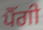
ਪੈੱਗੀ